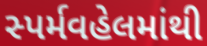
સ્પર્મવહેલમાંથી